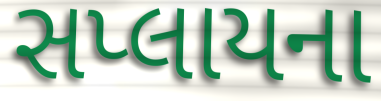
સપ્લાયના